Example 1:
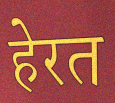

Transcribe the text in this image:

हेरत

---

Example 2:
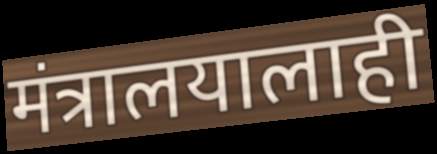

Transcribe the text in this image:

मंत्रालयालाही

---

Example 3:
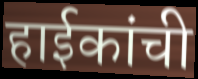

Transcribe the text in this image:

हाईकांची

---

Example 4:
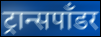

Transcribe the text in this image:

ट्रान्सपाँडर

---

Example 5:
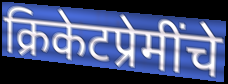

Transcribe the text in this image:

क्रिकेटप्रेमींचे